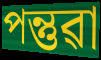
পন্তুৱা